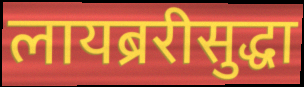
लायब्ररीसुद्धा